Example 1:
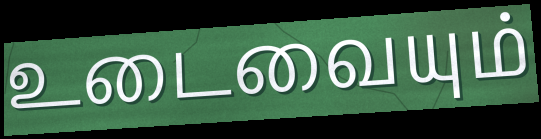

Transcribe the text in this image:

உடைவையும்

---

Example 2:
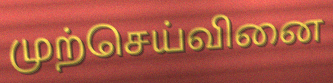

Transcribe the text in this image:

முற்செய்வினை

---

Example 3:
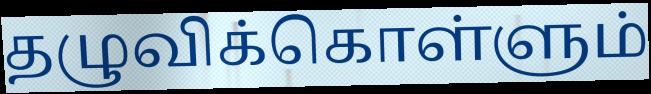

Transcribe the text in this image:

தழுவிக்கொள்ளும்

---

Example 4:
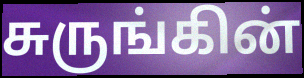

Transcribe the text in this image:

சுருங்கின்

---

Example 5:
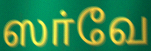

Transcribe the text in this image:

ஸர்வே